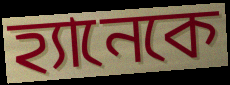
হ্যানেকে